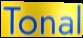
Tonal